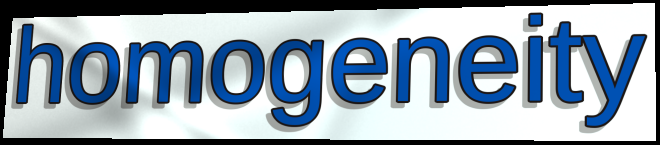
homogeneity